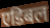
एडिबल